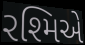
રશ્મિએ